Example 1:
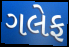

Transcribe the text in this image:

ગલેફ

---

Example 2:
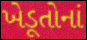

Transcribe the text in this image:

ખેડૂતોનાં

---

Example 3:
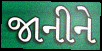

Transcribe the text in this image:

જાનીને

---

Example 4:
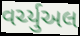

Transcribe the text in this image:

વર્ચ્યુઅલ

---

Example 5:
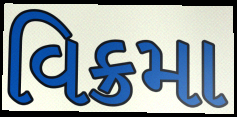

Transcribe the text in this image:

વિક્રમા